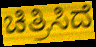
ಚಿತ್ರಿಸಿದೆ